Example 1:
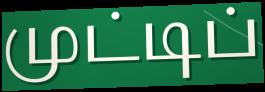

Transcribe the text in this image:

முட்டிப்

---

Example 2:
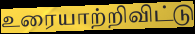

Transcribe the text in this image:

உரையாற்றிவிட்டு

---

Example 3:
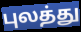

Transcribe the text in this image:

புலத்து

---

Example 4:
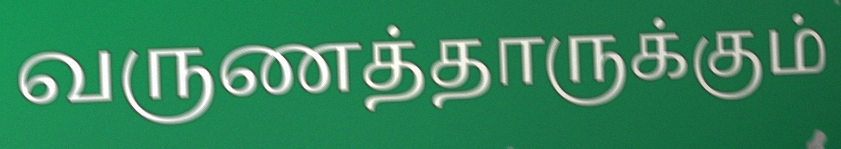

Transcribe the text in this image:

வருணத்தாருக்கும்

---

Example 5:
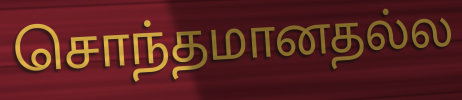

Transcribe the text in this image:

சொந்தமானதல்ல